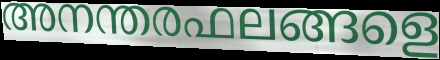
അനന്തരഫലങ്ങളെ